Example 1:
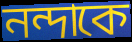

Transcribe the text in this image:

নন্দাকে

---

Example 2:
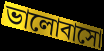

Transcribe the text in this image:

ভালোবাসো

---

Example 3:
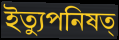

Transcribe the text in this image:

ইত্যুপনিষত্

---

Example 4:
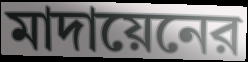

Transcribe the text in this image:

মাদায়েনের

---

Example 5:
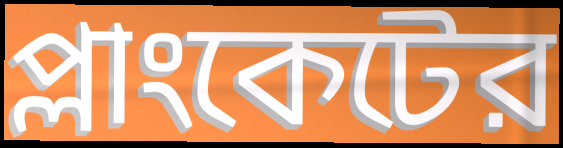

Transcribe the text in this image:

প্লাংকেটের